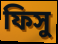
ফিসু